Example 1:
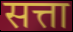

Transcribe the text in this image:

सत्ता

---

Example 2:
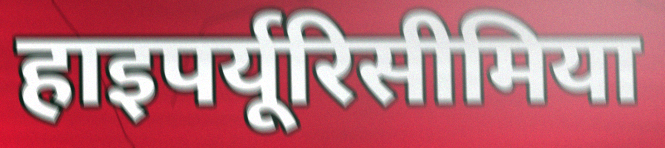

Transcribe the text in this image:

हाइपर्यूरिसीमिया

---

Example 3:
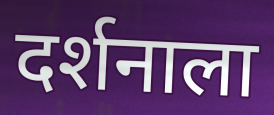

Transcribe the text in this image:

दर्शनाला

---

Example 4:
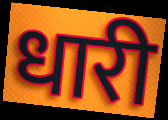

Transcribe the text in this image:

धारी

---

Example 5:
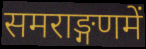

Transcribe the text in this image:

समराङ्गणमें